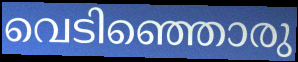
വെടിഞ്ഞൊരു